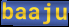
baaju